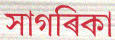
সাগৰিকা